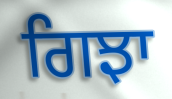
ਗਿਝਾ